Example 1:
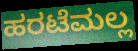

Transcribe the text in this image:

ಹರಟೆಮಲ್ಲ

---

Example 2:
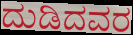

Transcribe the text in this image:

ದುಡಿದವರ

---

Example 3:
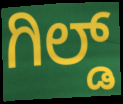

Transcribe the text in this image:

ಗಿಲ್ಡ್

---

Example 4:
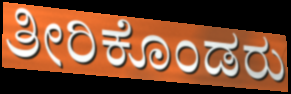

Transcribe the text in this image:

ತೀರಿಕೊಂಡರು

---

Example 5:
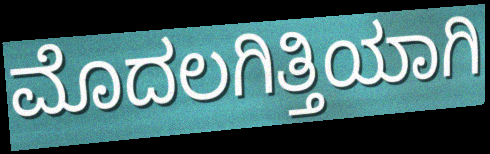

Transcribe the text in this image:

ಮೊದಲಗಿತ್ತಿಯಾಗಿ